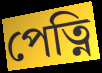
পেত্নি